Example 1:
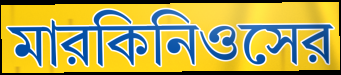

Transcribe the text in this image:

মারকিনিওসের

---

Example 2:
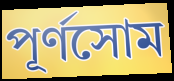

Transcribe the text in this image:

পূর্ণসোম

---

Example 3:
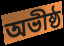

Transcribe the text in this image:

অভীষ্ঠ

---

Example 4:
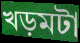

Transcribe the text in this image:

খড়মটা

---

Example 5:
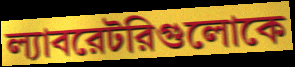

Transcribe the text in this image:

ল্যাবরেটরিগুলোকে